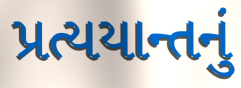
પ્રત્યયાન્તનું